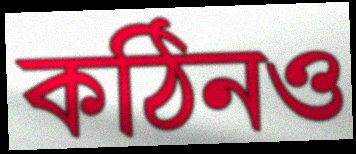
কঠিনও